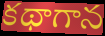
కథాగాన